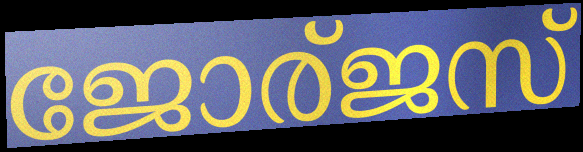
ജോര്ജസ്